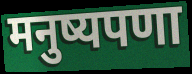
मनुष्यपणा